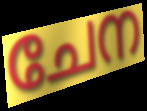
ചേന